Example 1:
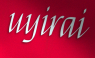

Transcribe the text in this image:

uyirai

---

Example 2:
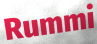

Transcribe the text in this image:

Rummi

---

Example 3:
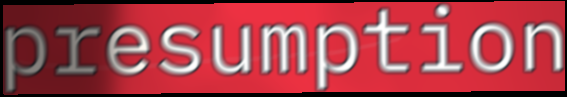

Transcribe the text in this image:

presumption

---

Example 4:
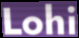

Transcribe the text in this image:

Lohi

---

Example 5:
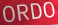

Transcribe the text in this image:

ORDO